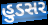
હુડસર